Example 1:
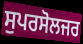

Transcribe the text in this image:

ਸੁਪਰਸੋਲਜਰ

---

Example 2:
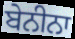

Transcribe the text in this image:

ਬੇਨੀਨਾ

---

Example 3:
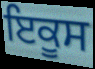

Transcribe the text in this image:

ਇਕੂਸ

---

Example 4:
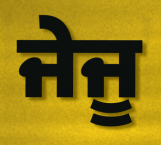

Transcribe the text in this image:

ਜੇਜੂ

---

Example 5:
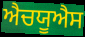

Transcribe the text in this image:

ਐਚਯੂਐਸ